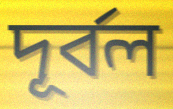
দূৰ্বল